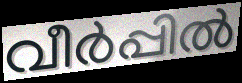
വീർപ്പിൽ